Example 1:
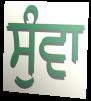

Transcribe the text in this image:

ਸੁੰਵਾ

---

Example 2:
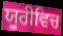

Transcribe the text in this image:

ਯੂਰੀਵਿਚ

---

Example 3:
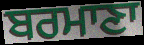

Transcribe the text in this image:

ਬਰਮਾਣਾ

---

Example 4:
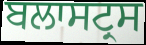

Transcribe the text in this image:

ਬਲਾਸਟ੍ਰਸ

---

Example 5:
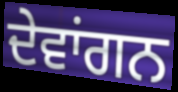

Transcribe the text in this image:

ਦੇਵਾਂਗਨ